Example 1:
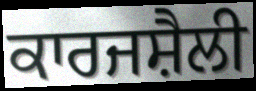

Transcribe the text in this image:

ਕਾਰਜਸ਼ੈਲੀ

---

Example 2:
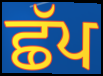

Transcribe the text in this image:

ਛੱਪ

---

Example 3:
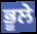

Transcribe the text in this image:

ਭੂਲੇ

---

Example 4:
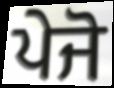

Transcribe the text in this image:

ਪੇਜੋ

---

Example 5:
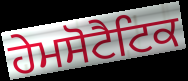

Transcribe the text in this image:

ਹੇਮਸੋਟੈਟਿਕ